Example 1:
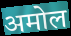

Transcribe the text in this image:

अमोल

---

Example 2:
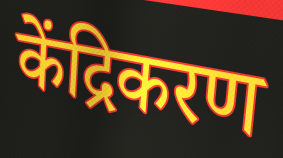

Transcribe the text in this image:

केंद्रिकरण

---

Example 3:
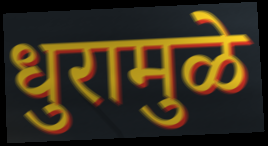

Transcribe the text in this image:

धुरामुळे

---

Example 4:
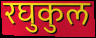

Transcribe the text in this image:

रघुकुल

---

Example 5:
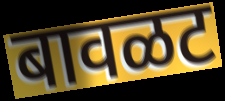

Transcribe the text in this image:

बावळट